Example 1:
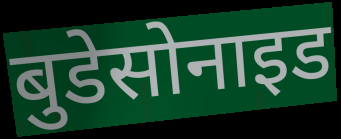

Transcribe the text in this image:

बुडेसोनाइड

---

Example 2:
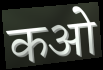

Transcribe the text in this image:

कओ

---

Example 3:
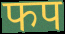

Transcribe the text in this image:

फप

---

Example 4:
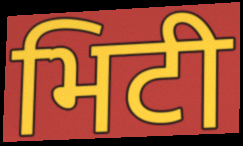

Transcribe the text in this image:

भिटी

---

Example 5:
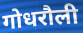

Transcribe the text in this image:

गोधरौली